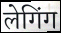
लेगिंग